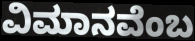
ವಿಮಾನವೆಂಬ